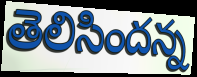
తెలిసిందన్న